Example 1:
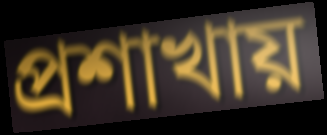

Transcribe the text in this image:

প্রশাখায়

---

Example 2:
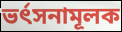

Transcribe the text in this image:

ভর্ৎসনামূলক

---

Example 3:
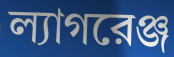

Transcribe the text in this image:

ল্যাগরেঞ্জ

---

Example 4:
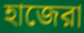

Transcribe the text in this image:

হাজেরা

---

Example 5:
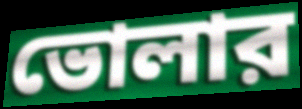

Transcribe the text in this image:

ভোলার